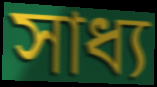
সাধ্য